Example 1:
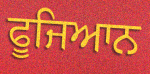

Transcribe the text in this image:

ਫੂਜਿਆਨ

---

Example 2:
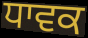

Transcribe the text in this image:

ਧਾਵਕ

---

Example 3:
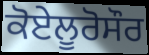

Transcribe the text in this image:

ਕੋਏਲੂਰੋਸੌਰ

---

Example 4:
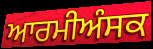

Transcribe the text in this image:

ਆਰਮੀਅੰਸਕ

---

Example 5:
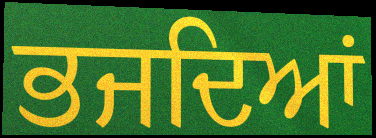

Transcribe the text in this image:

ਭਜਦਿਆਂ